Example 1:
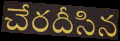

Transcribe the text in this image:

చేరదీసిన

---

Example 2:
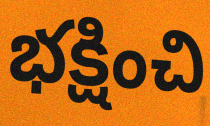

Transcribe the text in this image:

భక్షించి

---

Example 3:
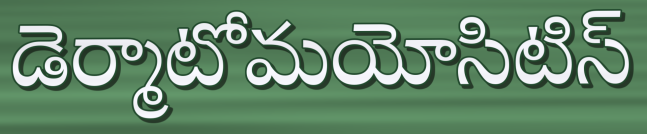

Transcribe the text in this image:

డెర్మాటోమయోసిటిస్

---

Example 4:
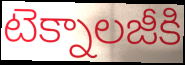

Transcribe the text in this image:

టెక్నాలజీకి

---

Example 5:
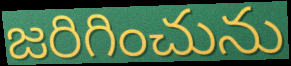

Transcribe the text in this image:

జరిగించును